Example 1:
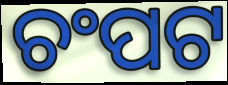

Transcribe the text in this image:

ଚଂପଟ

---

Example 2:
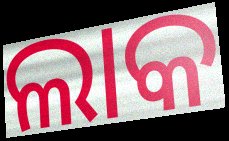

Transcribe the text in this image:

ଲାକ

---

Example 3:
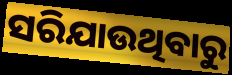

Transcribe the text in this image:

ସରିଯାଉଥିବାରୁ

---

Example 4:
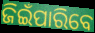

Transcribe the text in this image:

ଜିଇଁପାରିବେ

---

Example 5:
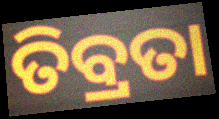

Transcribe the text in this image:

ତିବ୍ରତା